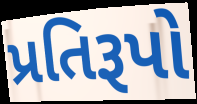
પ્રતિરૂપો